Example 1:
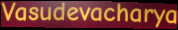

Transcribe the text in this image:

Vasudevacharya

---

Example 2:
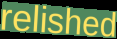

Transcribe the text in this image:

relished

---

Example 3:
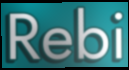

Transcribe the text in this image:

Rebi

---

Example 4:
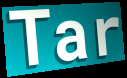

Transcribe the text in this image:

Tar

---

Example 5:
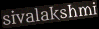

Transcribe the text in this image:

sivalakshmi